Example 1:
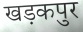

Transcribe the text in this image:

खड़कपुर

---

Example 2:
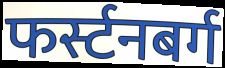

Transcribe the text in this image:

फर्स्टनबर्ग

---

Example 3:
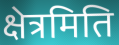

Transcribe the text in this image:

क्षेत्रमिति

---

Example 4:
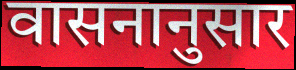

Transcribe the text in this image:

वासनानुसार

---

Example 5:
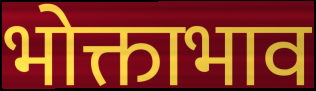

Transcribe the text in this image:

भोक्ताभाव